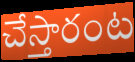
చేస్తారంట